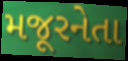
મજૂરનેતા